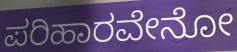
ಪರಿಹಾರವೇನೋ